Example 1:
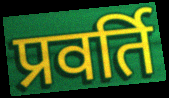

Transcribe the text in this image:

प्रवर्ति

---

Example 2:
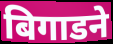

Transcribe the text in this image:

बिगाडने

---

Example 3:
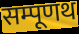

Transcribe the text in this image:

सम्पूणथ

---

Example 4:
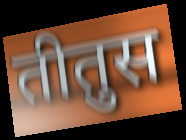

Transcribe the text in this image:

तीतुस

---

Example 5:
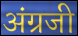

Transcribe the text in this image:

अंग्रजी